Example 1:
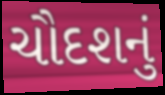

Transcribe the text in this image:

ચૌદશનું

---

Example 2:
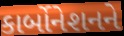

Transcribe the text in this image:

કાર્બોનેશનને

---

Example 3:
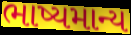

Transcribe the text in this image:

ભાષ્યમાન્ય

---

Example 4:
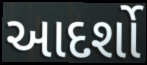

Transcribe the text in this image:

આદર્શો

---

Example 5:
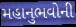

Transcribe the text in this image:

મહાનુભવોની